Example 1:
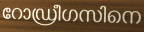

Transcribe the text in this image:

റോഡ്രീഗസിനെ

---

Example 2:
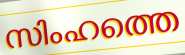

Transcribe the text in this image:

സിംഹത്തെ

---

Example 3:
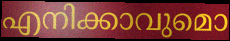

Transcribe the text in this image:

എനിക്കാവുമൊ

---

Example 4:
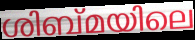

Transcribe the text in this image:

ശിബ്മയിലെ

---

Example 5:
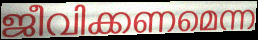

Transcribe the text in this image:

ജീവിക്കണമെന്ന